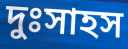
দুঃসাহস